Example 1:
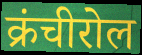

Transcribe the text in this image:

क्रंचीरोल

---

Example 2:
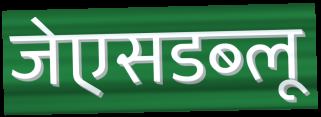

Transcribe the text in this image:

जेएसडब्‍लू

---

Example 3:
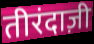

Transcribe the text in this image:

तीरंदाज़ी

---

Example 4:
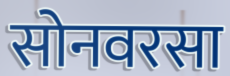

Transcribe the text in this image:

सोनवरसा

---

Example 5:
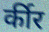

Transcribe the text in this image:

र्कीर